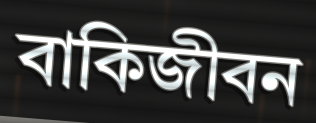
বাকিজীবন